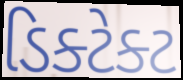
ડિક્ટેક્ટ